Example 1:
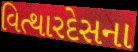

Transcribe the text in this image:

વિત્થારદેસના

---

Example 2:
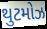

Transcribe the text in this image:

થુટમોઝ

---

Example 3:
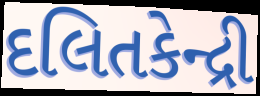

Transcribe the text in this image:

દલિતકેન્દ્રી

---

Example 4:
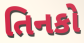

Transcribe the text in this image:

તિનકો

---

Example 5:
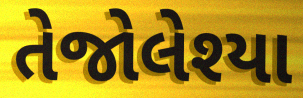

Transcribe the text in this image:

તેજોલેશ્યા